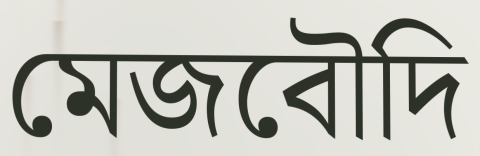
মেজবৌদি